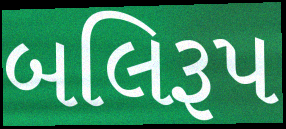
બલિરૂપ